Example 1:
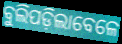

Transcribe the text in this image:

ବୁଲିପଡ଼ିଲାବେଳେ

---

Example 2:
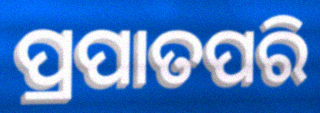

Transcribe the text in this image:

ପ୍ରପାତପରି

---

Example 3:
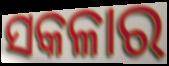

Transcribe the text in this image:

ସକଳାର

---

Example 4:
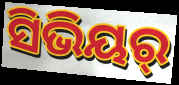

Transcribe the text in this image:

ସିଭିୟର୍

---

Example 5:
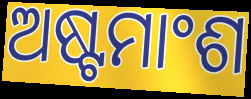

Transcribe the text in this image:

ଅଷ୍ଟମାଂଶ